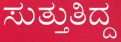
ಸುತ್ತುತಿದ್ದ